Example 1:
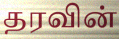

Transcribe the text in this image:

தரவின்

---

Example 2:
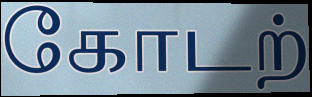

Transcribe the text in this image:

கோடற்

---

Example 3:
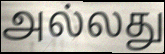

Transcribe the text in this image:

அல்லது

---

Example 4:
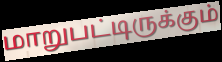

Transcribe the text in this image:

மாறுபட்டிருக்கும்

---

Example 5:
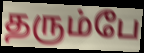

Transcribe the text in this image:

தரும்பே